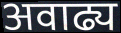
अवाढ्य